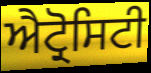
ਐਟ੍ਰੋਸਿਟੀ